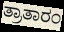
ತ್ರಾತಾರಂ